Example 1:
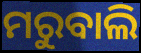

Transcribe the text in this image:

ମରୁବାଲି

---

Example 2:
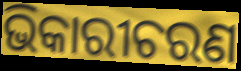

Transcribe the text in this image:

ଭିକାରୀଚରଣ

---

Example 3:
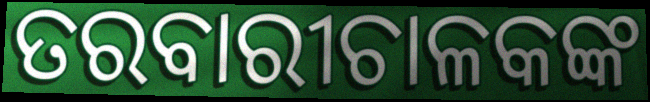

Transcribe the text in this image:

ତରବାରୀଚାଳକଙ୍କ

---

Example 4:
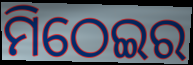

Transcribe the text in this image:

ମିଠେଇର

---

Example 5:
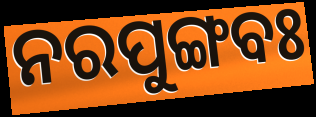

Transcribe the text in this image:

ନରପୁଙ୍ଗବଃ